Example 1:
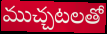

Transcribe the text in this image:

ముచ్చటలతో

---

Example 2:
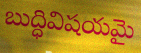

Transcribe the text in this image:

బుద్ధివిషయమై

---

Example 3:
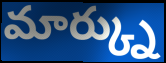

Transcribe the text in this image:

మార్క్ను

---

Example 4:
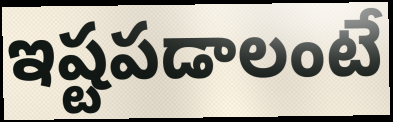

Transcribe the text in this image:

ఇష్టపడాలంటే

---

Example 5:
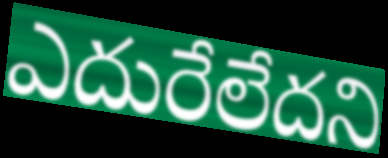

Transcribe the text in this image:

ఎదురేలేదని